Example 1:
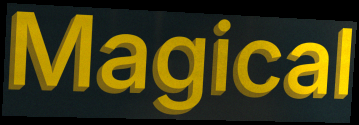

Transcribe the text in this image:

Magical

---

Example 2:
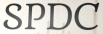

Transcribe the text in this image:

SPDC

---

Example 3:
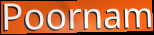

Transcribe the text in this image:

Poornam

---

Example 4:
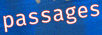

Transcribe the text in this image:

passages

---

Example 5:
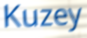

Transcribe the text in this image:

Kuzey